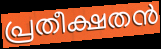
പ്രതീക്ഷതൻ